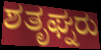
ಶತೃಘ್ನರು